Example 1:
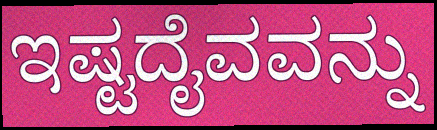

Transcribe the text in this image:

ಇಷ್ಟದೈವವನ್ನು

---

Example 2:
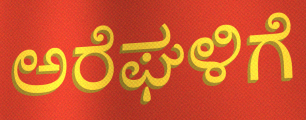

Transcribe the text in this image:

ಅರೆಘಳಿಗೆ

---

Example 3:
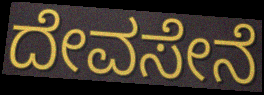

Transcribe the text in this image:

ದೇವಸೇನೆ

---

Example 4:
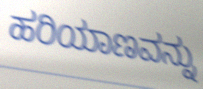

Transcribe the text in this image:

ಹರಿಯಾಣವನ್ನು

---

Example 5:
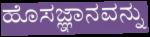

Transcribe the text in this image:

ಹೊಸಜ್ಞಾನವನ್ನು